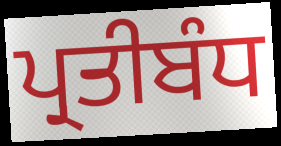
ਪ੍ਰਤੀਬੰਧ